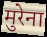
मुरेना